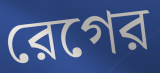
রেগের